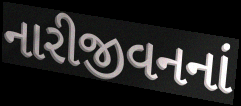
નારીજીવનનાં